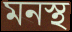
মনস্থ